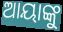
ଆୟାଙ୍କୁ